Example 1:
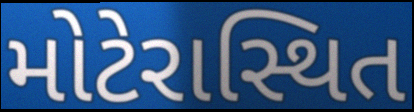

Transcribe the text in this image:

મોટેરાસ્થિત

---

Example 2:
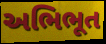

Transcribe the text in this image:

અભિભૂત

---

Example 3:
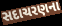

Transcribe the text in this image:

સદાચરણના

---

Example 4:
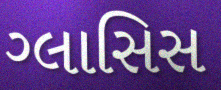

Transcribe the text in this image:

ગ્લાસિસ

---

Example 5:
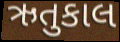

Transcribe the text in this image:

ઋતુકાલ